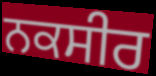
ਨਕਸੀਰ